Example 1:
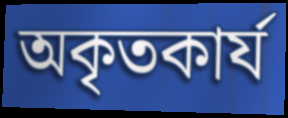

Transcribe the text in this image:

অকৃতকাৰ্য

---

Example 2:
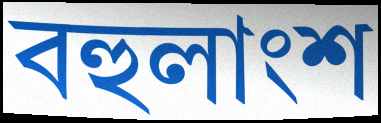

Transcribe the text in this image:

বহুলাংশ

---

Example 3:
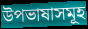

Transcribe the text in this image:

উপভাষাসমূহ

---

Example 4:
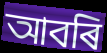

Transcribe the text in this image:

আবৰি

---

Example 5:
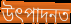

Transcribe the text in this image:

উৎপাদনত